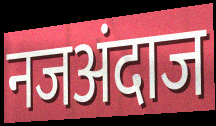
नजअंदाज